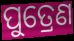
ପୁତ୍ରେଣ